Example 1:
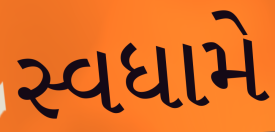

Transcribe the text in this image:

સ્વધામે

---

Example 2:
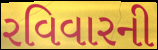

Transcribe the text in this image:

રવિવારની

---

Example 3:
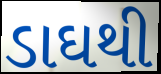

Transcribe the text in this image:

ડાઘથી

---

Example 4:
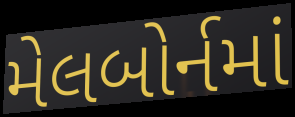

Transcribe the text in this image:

મેલબોર્નમાં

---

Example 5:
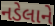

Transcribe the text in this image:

નડેલાને